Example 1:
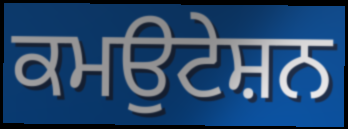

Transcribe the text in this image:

ਕਮਉਟੇਸ਼ਨ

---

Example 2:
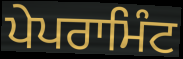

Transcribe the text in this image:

ਪੇਪਰਾਮਿੰਟ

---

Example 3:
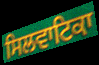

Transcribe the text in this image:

ਸਿਲਵਾਟਿਕਾ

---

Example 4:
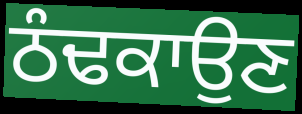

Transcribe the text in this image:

ਠੰਢਕਾਉਣ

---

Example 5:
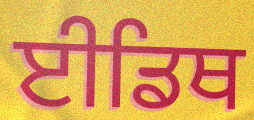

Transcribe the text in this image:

ਈਡਿਥ